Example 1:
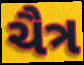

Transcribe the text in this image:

ચૈત્ર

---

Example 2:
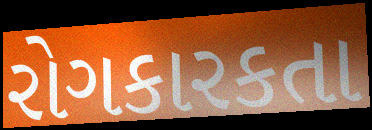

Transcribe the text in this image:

રોગકારકતા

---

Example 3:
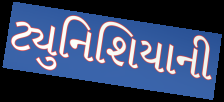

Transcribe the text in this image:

ટ્યુનિશિયાની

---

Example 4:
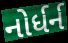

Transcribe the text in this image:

નોર્ધર્ન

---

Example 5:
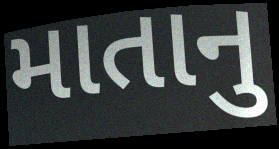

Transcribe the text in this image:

માતાનુ